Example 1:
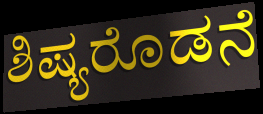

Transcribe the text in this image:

ಶಿಷ್ಯರೊಡನೆ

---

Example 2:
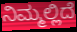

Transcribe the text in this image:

ನಿಮ್ಮಲ್ಲಿದೆ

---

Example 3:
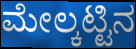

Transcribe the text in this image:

ಮೇಲ್ಕಟ್ಟಿನ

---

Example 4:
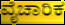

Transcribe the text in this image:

ವೈಚಾರಿಕ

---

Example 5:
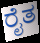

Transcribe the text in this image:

ರೈತ